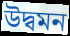
উদ্বমন